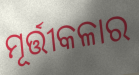
ମୂର୍ତ୍ତୀକଳାର